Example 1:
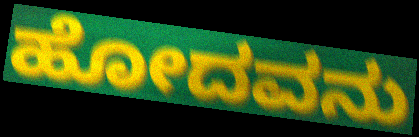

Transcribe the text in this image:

ಹೋದವನು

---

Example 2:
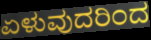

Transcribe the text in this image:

ಏಳುವುದರಿಂದ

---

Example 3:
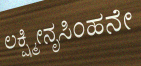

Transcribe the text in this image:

ಲಕ್ಷ್ಮೀನೃಸಿಂಹನೇ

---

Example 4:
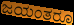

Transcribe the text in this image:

ಜಯಂತರೂ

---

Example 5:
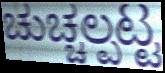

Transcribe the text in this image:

ಚುಚ್ಚಲ್ಪಟ್ಟ